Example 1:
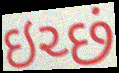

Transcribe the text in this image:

ઇચ્છં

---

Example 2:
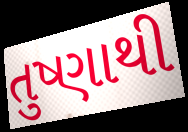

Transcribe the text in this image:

તુષ્ણાથી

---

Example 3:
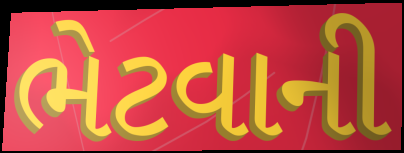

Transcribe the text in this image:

ભેટવાની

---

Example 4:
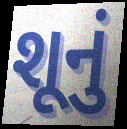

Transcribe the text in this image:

શૂનું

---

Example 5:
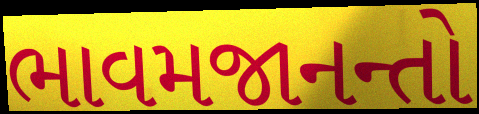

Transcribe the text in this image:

ભાવમજાનન્તો